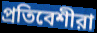
প্রতিবেশীরা